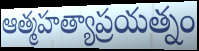
ఆత్మహత్యాప్రయత్నం